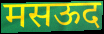
मसऊद